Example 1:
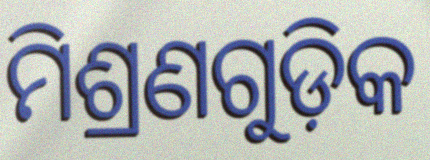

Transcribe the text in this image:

ମିଶ୍ରଣଗୁଡ଼ିକ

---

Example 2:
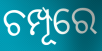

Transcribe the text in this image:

ଚମ୍ପୂରେ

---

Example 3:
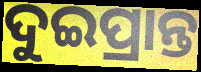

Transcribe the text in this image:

ଦୁଇପ୍ରାନ୍ତ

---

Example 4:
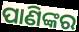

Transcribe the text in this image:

ପାଣିଙ୍କର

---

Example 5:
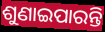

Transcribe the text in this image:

ଶୁଣାଇପାରନ୍ତି